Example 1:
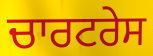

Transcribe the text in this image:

ਚਾਰਟਰੇਸ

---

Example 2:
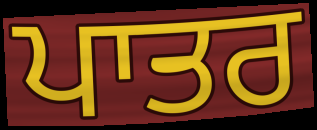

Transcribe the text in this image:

ਪਾਤਰ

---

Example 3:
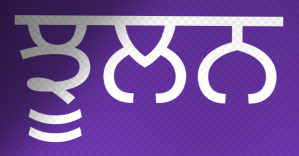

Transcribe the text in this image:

ਝੂਲਨ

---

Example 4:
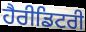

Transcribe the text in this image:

ਹੈਰੀਡਿਟਰੀ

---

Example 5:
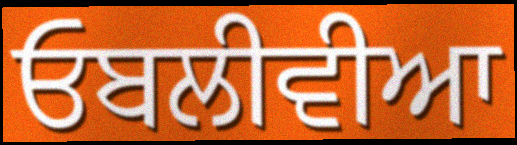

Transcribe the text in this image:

ਓਬਲੀਵੀਆ